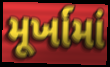
મૂર્ખામાં